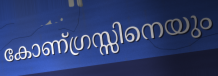
കോണ്ഗ്രസ്സിനെയും